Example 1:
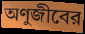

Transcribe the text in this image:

অণুজীবের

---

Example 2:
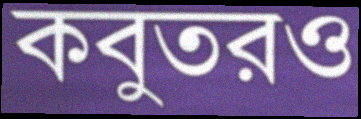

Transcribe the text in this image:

কবুতরও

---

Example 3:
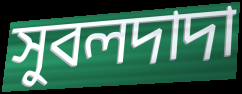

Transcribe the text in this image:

সুবলদাদা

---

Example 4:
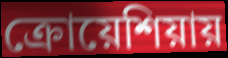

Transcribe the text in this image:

ক্রোয়েশিয়ায়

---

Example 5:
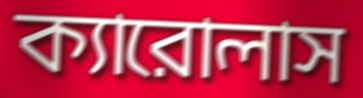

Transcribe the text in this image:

ক্যারোলাস